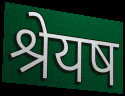
श्रेयष